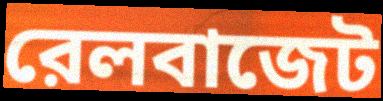
রেলবাজেট